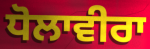
ਧੋਲਾਵੀਰਾ